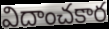
విదాంచకార